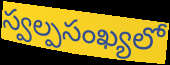
స్వల్పసంఖ్యలో